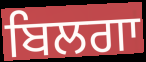
ਬਿਲਗਾ